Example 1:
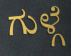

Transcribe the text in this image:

ಗುಳ್ಗೆ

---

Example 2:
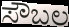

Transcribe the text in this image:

ಸೌಬಲ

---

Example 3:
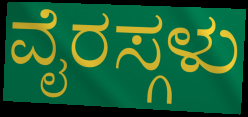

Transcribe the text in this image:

ವೈರಸ್ಗಳು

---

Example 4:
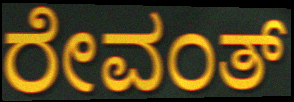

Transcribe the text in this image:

ರೇವಂತ್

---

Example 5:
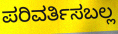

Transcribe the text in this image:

ಪರಿವರ್ತಿಸಬಲ್ಲ